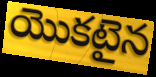
యొకటైన